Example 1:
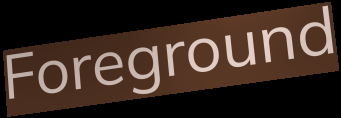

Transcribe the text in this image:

Foreground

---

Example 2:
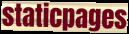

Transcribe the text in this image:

staticpages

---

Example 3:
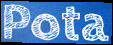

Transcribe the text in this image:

Pota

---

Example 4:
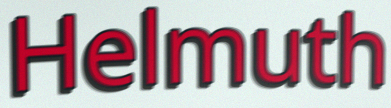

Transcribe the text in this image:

Helmuth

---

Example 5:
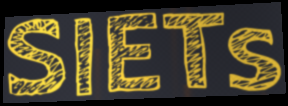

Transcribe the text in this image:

SIETs